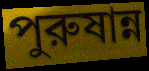
পুরুষান্ন